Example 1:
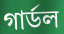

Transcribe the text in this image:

গার্ডল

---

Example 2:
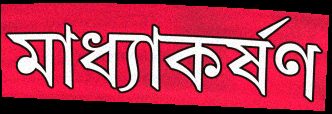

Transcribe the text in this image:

মাধ্যাকর্ষণ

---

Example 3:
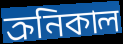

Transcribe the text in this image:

ক্রনিকাল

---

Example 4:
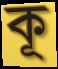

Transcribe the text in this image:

কূ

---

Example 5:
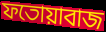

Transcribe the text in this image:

ফতোয়াবাজ